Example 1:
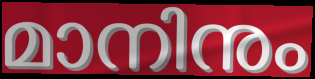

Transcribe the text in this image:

മാനിനും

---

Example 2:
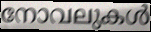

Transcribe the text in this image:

നോവലുകൾ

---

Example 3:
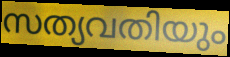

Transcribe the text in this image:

സത്യവതിയും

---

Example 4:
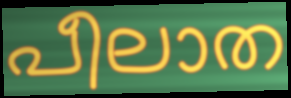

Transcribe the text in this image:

പീലാത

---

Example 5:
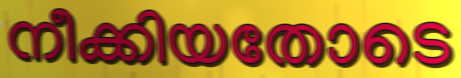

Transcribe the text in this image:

നീക്കിയതോടെ